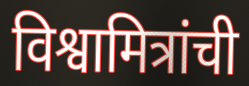
विश्वामित्रांची